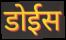
डोईस